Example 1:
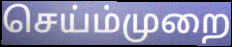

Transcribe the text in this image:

செய்ம்முறை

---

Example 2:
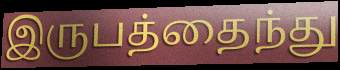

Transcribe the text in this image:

இருபத்தைந்து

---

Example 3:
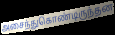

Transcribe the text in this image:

அசைந்துகொண்டிருந்தன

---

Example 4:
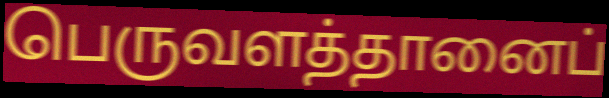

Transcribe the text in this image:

பெருவளத்தானைப்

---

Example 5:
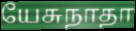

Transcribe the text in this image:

யேசுநாதா